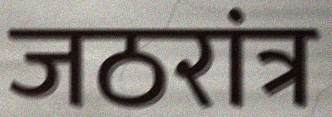
जठरांत्र